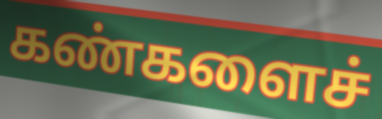
கண்களைச்